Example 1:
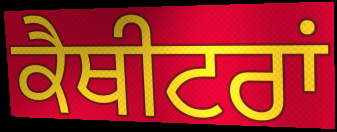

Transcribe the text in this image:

ਕੈਥੀਟਰਾਂ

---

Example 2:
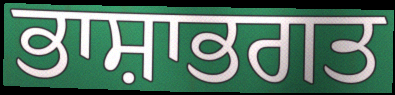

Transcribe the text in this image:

ਭਾਸ਼ਾਭਗਤ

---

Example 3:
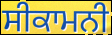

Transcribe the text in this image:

ਸੀਕਾਮਨੀ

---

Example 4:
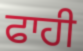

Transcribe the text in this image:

ਫਾਹੀ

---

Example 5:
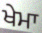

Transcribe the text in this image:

ਖੇਮਾ